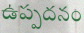
ఉప్పదనం